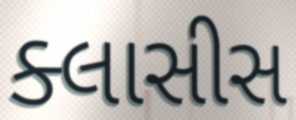
ક્લાસીસ